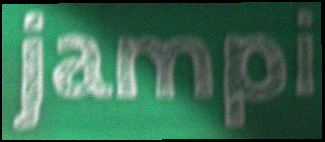
jampi